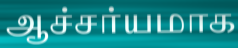
ஆச்சர்யமாக